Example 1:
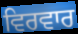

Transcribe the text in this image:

ਵਿਰਵਾਰ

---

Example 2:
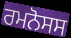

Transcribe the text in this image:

ਰਮਨੋਸਸ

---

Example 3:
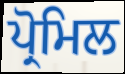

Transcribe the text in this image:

ਪ੍ਰੋਮਿਲ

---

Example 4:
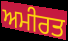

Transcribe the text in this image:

ਅਮੀਰਤ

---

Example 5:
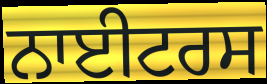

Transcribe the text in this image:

ਨਾਈਟਰਸ